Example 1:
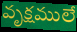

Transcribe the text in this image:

వృక్షములే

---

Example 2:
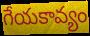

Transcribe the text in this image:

గేయకావ్యం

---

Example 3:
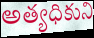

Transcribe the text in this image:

అత్యధికుని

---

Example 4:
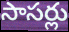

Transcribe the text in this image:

సాసర్లు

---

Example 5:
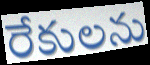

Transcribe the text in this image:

రేకులను